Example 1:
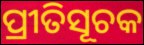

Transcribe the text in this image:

ପ୍ରୀତିସୂଚକ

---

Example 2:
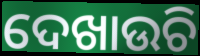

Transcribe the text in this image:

ଦେଖାଉଚି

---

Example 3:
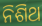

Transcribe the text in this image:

ନିଶିଥ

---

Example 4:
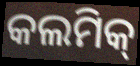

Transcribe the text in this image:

କଲମିକ୍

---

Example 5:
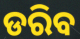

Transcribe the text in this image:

ଡରିବ